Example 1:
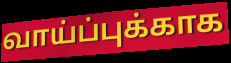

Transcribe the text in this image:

வாய்ப்புக்காக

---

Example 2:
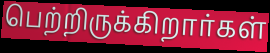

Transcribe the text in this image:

பெற்றிருக்கிறார்கள்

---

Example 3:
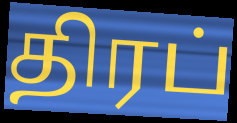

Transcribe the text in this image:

திரப்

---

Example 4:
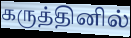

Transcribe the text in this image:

கருத்தினில்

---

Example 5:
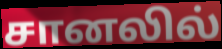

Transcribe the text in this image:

சானலில்